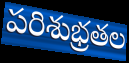
పరిశుభ్రతల